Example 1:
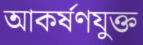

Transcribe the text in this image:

আকর্ষণযুক্ত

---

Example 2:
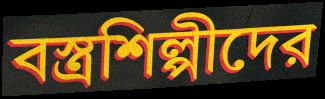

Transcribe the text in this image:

বস্ত্রশিল্পীদের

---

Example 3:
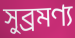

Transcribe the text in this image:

সুব্রমণ্য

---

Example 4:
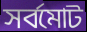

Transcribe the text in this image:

সর্বমোট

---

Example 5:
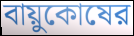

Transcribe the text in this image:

বায়ুকোষের